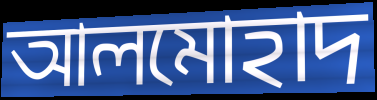
আলমোহাদ